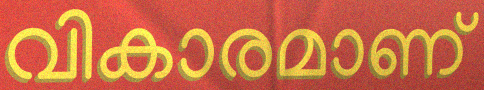
വികാരമാണ്